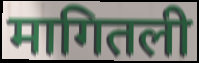
मागितली